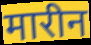
मारीन